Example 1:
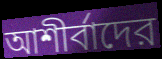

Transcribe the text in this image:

আশীর্বাদের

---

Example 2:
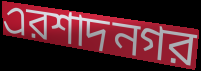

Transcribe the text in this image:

এরশাদনগর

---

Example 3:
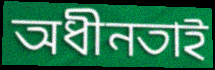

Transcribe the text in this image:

অধীনতাই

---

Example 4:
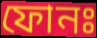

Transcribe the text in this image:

ফোনঃ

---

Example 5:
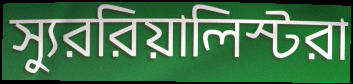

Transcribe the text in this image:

স্যুররিয়ালিস্টরা